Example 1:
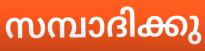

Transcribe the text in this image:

സമ്പാദിക്കു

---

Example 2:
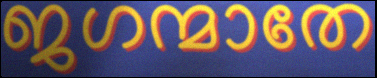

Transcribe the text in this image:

ജഗന്മാതേ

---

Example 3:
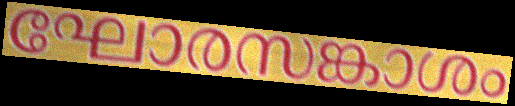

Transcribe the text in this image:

ഘോരസങ്കാശം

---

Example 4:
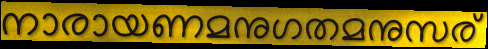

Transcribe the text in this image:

നാരായണമനുഗതമനുസര്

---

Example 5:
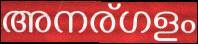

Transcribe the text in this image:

അനര്ഗളം